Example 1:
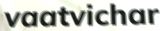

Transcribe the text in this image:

vaatvichar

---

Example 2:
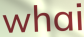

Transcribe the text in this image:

whai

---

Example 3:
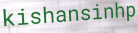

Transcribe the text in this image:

kishansinhp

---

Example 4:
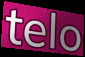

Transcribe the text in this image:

telo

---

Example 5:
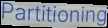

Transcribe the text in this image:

Partitioning